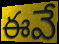
ఈవే